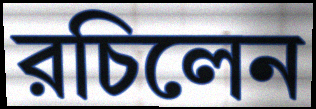
রচিলেন